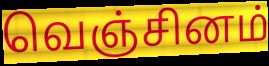
வெஞ்சினம்